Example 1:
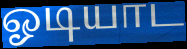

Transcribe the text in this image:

ஓடியாட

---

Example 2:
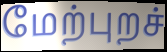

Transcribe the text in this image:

மேற்புறச்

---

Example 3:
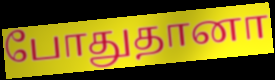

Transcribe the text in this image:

போதுதானா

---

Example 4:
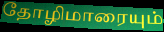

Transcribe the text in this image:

தோழிமாரையும்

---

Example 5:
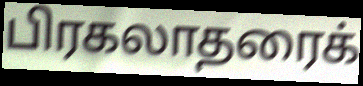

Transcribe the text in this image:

பிரகலாதரைக்